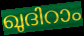
ഖുദിറാം